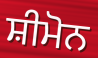
ਸ਼ੀਮੋਨ